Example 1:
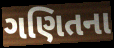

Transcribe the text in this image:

ગણિતના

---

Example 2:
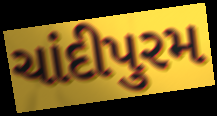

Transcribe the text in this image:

ચાંદીપુરમ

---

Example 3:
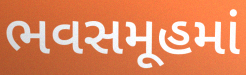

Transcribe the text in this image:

ભવસમૂહમાં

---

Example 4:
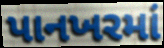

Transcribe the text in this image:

પાનખરમાં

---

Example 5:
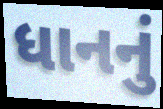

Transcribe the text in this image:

ધાનનું